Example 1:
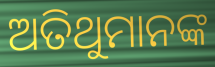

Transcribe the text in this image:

ଅତିଥୁମାନଙ୍କ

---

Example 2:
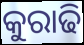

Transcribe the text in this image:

କୁରାଢି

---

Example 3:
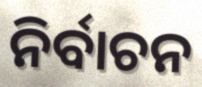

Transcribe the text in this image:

ନିର୍ବାଚନ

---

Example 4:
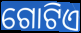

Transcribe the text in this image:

ଗୋଟିଏ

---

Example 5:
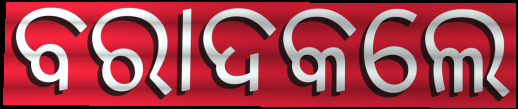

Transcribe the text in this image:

ବରାଦକଲେ